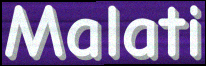
Malati